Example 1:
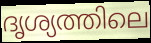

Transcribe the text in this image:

ദൃശ്യത്തിലെ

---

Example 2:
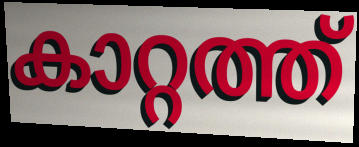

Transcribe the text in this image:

കാറ്റത്ത്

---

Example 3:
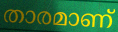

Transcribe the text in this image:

താരമാണ്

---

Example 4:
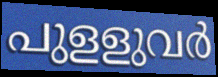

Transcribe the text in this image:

പുളളുവർ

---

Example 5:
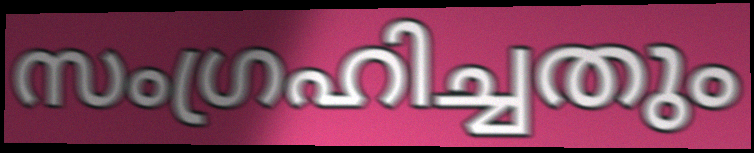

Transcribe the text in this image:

സംഗ്രഹിച്ചതും